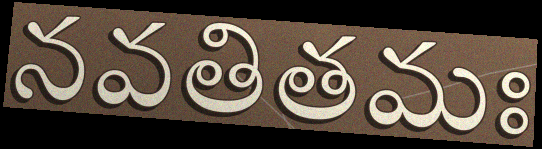
నవతితమః